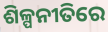
ଶିଳ୍ପନୀତିରେ